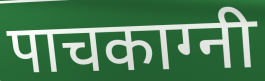
पाचकाग्नी